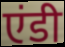
एंडी